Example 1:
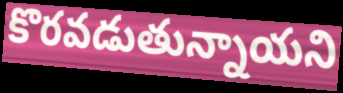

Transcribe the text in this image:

కొరవడుతున్నాయని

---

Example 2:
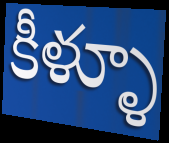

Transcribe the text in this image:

కీళ్ళూ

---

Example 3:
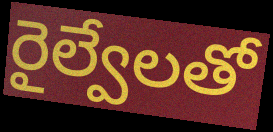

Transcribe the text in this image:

రైల్వేలతో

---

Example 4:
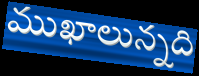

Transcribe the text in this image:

ముఖాలున్నది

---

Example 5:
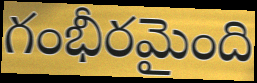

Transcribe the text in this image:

గంభీరమైంది